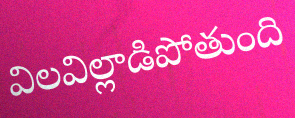
విలవిల్లాడిపోతుంది